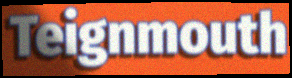
Teignmouth